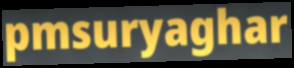
pmsuryaghar